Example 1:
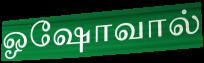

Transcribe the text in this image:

ஓஷோவால்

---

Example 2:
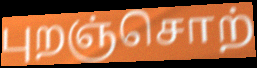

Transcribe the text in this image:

புறஞ்சொற்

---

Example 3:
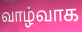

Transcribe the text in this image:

வாழ்வாக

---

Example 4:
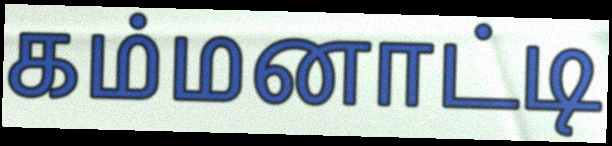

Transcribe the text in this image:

கம்மனாட்டி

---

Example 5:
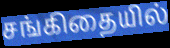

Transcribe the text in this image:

சங்கிதையில்